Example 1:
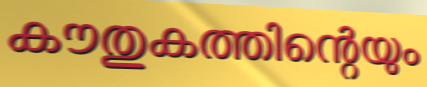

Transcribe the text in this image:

കൗതുകത്തിന്റെയും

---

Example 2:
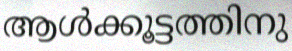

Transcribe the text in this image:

ആൾക്കൂട്ടത്തിനു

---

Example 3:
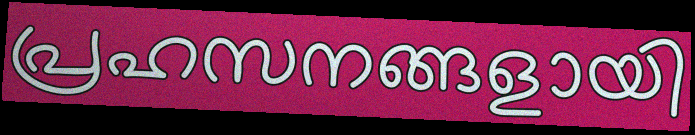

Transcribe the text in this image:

പ്രഹസനങ്ങളായി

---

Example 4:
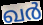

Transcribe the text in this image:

ഖർ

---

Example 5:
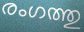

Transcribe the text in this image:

രംഗത്തു